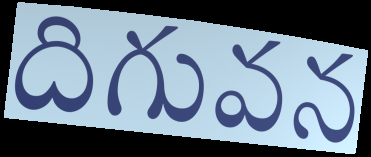
దిగువన